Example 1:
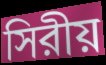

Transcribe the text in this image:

সিরীয়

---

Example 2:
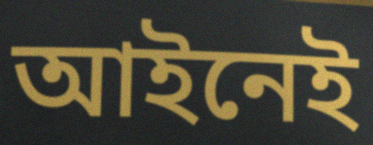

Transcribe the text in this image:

আইনেই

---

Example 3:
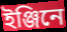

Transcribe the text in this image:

ইঞ্জিনে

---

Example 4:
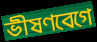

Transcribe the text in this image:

ভীষণবেগে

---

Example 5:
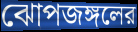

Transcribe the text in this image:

ঝোপজঙ্গলের